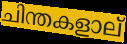
ചിന്തകളാല്